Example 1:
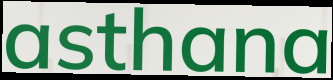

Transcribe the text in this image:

asthana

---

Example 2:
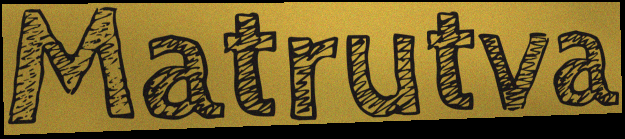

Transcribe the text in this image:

Matrutva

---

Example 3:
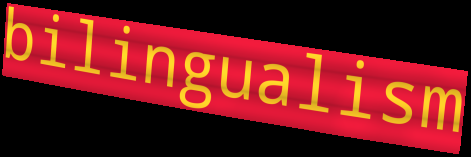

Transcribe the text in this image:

bilingualism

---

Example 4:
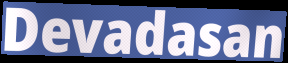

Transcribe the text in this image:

Devadasan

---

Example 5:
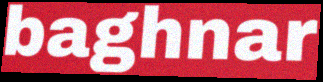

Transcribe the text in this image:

baghnar